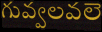
గువ్వలవలె